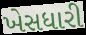
ખેસધારી